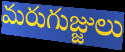
మరుగుజ్జులు